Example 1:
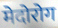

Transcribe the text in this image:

मेदोरोग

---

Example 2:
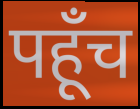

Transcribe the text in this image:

पहूँच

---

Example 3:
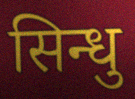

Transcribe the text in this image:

सिन्धु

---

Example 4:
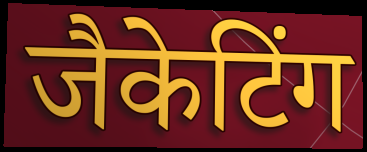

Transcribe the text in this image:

जैकेटिंग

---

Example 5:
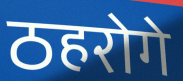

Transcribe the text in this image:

ठहरोगे